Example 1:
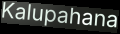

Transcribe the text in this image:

Kalupahana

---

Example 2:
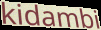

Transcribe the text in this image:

kidambi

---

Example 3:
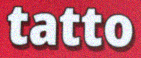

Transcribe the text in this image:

tatto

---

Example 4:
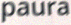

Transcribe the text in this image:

paura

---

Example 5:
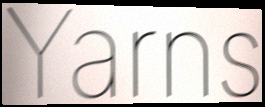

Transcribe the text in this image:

Yarns